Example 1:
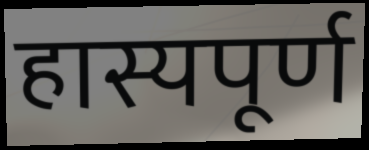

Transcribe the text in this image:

हास्यपूर्ण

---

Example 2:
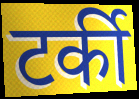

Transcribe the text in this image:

टर्की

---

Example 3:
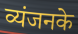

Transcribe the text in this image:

व्यंजनके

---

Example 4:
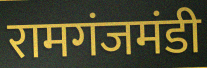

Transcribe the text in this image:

रामगंजमंडी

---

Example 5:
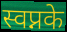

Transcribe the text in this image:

स्वप्नके